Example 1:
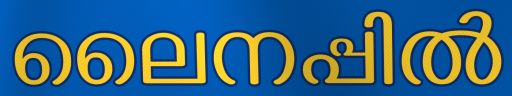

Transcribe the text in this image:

ലൈനപ്പിൽ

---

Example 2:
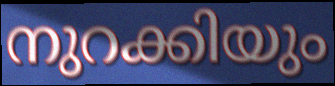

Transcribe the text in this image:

നുറക്കിയും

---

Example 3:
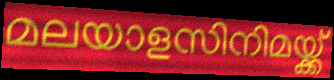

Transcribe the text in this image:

മലയാളസിനിമയ്ക്ക്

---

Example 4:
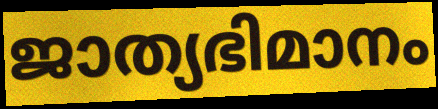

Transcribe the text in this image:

ജാത്യഭിമാനം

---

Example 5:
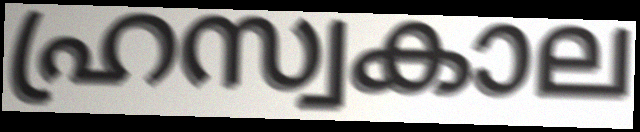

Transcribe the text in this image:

ഹ്രസ്വകാല